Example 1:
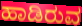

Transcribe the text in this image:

ಹಾಡಿರುವ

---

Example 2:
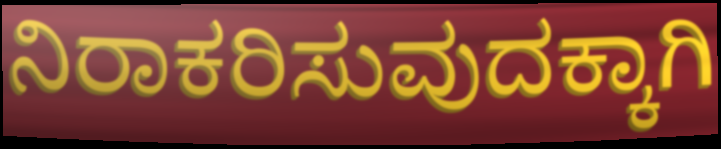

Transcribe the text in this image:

ನಿರಾಕರಿಸುವುದಕ್ಕಾಗಿ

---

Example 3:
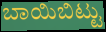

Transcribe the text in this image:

ಬಾಯಿಬಿಟ್ಟು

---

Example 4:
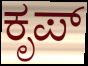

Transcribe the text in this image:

ಕೃಪ್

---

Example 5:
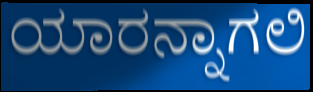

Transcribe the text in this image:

ಯಾರನ್ನಾಗಲಿ